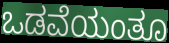
ಒಡವೆಯಂತೂ